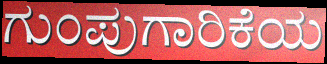
ಗುಂಪುಗಾರಿಕೆಯ